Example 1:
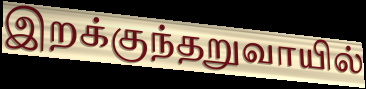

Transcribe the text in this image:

இறக்குந்தறுவாயில்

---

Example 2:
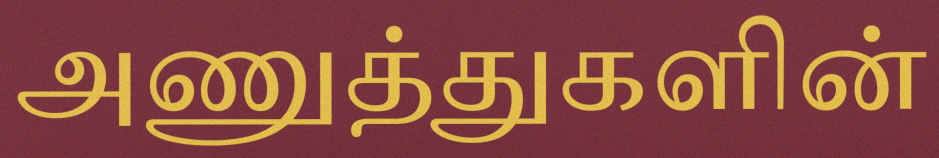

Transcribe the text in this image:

அணுத்துகளின்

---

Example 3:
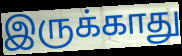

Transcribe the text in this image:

இருக்காது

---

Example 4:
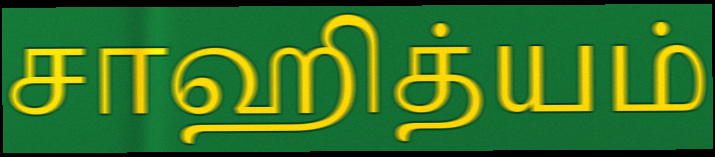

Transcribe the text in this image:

சாஹித்யம்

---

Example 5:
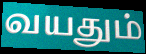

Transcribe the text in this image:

வயதும்